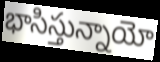
భాసిస్తున్నాయో